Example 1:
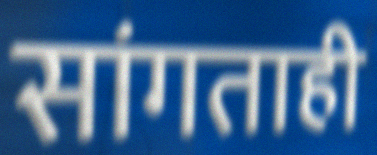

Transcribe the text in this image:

सांगताही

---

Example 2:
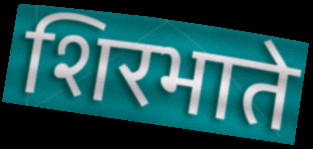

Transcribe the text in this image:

शिरभाते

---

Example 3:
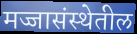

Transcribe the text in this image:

मज्जासंस्थेतील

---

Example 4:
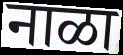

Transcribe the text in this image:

नाळा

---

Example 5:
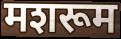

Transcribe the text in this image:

मशरूम